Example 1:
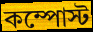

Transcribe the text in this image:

কম্পোস্ট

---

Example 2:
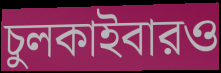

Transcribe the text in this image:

চুলকাইবারও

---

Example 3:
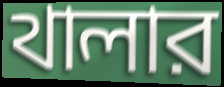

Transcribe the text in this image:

থালার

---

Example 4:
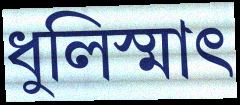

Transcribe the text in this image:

ধুলিস্মাৎ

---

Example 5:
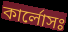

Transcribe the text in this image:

কার্লোসঃ